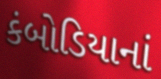
કંબોડિયાનાં